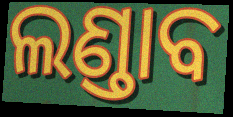
ଲଣ୍ଡାବ